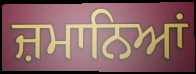
ਜ਼ਮਾਨਿਆਂ